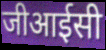
जीआईसी